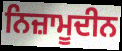
ਨਿਜ਼ਾਮੂਦੀਨ